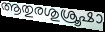
ആതുരശുശ്രൂഷാ